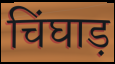
चिंघाड़